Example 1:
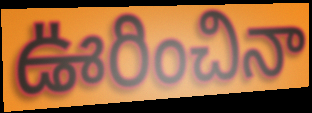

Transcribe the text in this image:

ఊరించినా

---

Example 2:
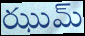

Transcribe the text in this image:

ఝుమ్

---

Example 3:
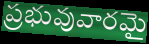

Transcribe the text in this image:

ప్రభువువారమై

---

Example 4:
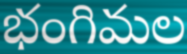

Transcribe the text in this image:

భంగిమల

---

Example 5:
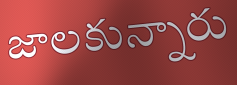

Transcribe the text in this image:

జాలకున్నారు